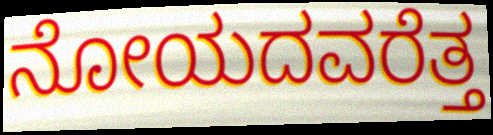
ನೋಯದವರೆತ್ತ